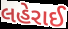
લહેરાઈ